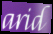
arid